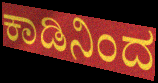
ಕಾಡಿನಿಂದ